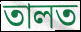
তালত